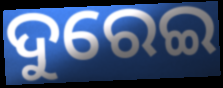
ଦୁରେଇ